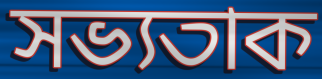
সভ্যতাক